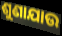
ଶୁଣାଯାଉ